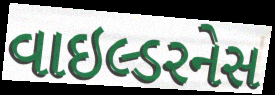
વાઇલ્ડરનેસ